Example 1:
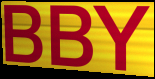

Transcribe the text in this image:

BBY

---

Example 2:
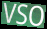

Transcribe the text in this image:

VSO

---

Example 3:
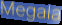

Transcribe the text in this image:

Megala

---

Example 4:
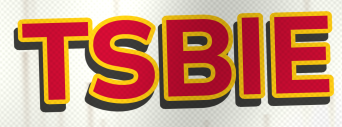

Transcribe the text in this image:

TSBIE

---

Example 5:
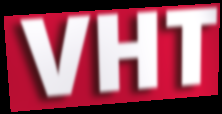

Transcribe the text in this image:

VHT